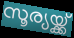
സൂര്യയ്ക്ക്